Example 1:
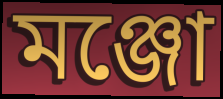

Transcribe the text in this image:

মঞ্জো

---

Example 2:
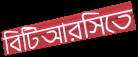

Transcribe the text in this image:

বিটিআরসিতে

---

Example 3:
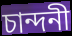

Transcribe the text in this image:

চান্দনী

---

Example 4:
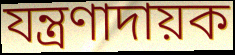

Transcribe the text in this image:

যন্ত্রণাদায়ক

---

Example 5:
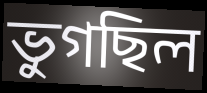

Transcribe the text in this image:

ভুগছিল